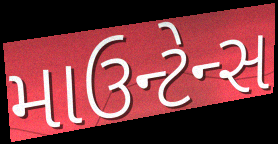
માઉન્ટેન્સ